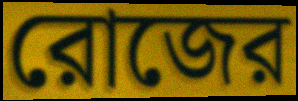
রোজের